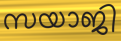
സയാജി